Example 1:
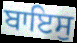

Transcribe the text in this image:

ਬਾਇਸੁ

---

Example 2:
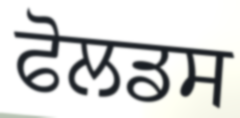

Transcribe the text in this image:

ਫੋਲਡਸ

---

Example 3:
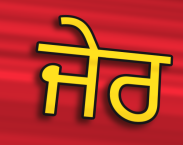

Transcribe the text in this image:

ਜੇਰ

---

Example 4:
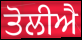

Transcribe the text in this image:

ਤੋਲੀਐ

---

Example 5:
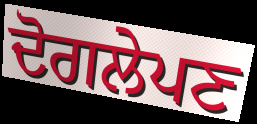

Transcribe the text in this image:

ਦੋਗਲੇਪਣ